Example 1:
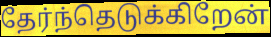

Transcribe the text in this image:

தேர்ந்தெடுக்கிறேன்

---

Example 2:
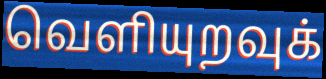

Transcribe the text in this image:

வெளியுறவுக்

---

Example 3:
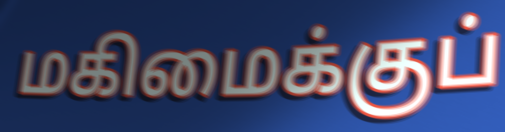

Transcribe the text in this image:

மகிமைக்குப்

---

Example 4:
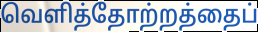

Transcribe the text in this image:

வெளித்தோற்றத்தைப்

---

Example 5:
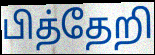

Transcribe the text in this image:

பித்தேறி